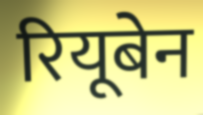
रियूबेन